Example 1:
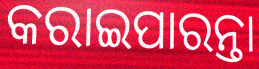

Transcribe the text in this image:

କରାଇପାରନ୍ତା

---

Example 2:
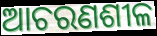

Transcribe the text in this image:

ଆଚରଣଶୀଳ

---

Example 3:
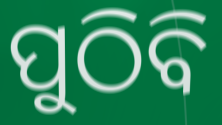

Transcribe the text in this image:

ପୁଠିବି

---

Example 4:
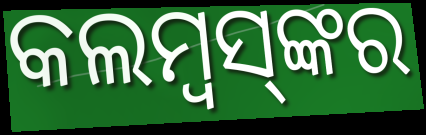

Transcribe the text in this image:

କଲମ୍ୱସ୍‌ଙ୍କର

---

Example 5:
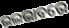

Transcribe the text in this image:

ଭଲଭାବରେ